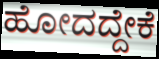
ಹೋದದ್ದೇಕೆ